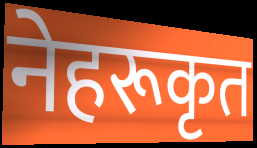
नेहरूकृत